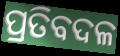
ପ୍ରତିବଦଳ